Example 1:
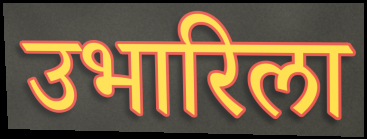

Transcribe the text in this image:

उभारिला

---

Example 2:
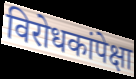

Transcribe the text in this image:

विरोधकांपेक्षा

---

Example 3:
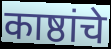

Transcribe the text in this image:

काष्ठांचे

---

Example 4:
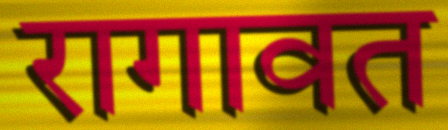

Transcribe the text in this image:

रागावत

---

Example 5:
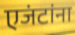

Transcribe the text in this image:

एजंटांना